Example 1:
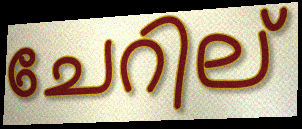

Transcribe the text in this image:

ചേറില്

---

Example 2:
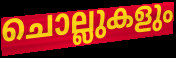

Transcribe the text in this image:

ചൊല്ലുകളും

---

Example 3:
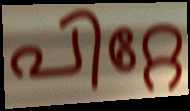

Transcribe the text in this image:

പിറ്റേ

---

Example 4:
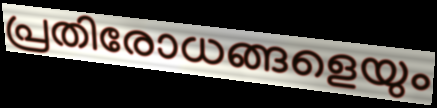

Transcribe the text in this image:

പ്രതിരോധങ്ങളെയും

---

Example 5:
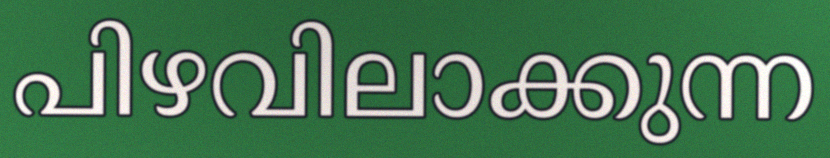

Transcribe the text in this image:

പിഴവിലാക്കുന്ന